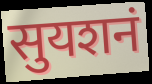
सुयशनं